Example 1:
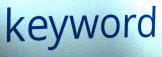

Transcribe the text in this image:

keyword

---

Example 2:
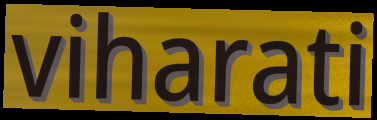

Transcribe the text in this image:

viharati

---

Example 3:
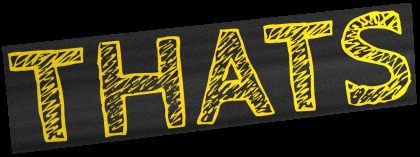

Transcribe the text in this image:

THATS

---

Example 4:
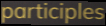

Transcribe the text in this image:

participles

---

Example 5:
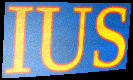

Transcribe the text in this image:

IUS